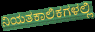
ನಿಯತಕಾಲಿಕಗಳಲ್ಲಿ